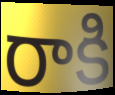
రాకి